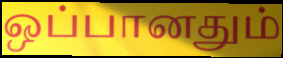
ஒப்பானதும்